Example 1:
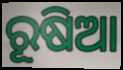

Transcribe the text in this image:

ରୂଷିଆ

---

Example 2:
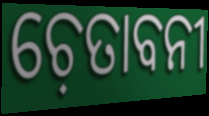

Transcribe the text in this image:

ଚ଼େତାବନୀ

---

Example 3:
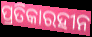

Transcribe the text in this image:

ପ୍ରତିକାରହୀନ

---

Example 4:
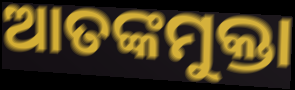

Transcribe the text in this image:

ଆତଙ୍କମୁକ୍ତା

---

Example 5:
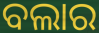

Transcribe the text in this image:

ବଲାର